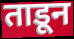
ताडून